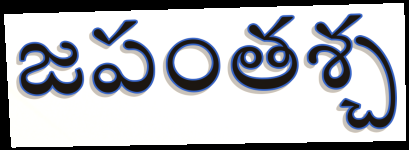
జపంతశ్చ